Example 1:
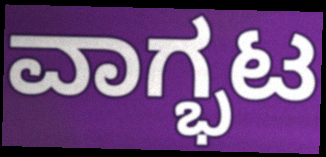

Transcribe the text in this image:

ವಾಗ್ಭಟ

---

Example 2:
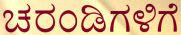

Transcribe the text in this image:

ಚರಂಡಿಗಳಿಗೆ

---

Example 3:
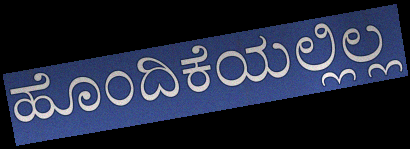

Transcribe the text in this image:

ಹೊಂದಿಕೆಯಲ್ಲಿಲ್ಲ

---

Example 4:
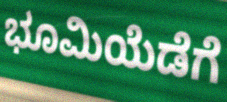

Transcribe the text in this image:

ಭೂಮಿಯೆಡೆಗೆ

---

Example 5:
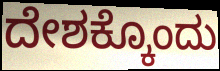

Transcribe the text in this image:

ದೇಶಕ್ಕೊಂದು